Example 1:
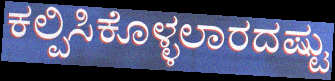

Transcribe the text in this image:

ಕಲ್ಪಿಸಿಕೊಳ್ಳಲಾರದಷ್ಟು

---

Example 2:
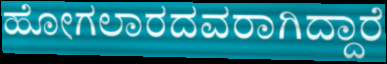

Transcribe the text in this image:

ಹೋಗಲಾರದವರಾಗಿದ್ದಾರೆ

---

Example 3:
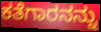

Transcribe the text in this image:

ಕತೆಗಾರನನ್ನು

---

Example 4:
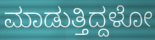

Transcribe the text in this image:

ಮಾಡುತ್ತಿದ್ದಳೋ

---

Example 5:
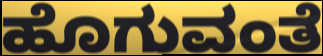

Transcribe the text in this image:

ಹೊಗುವಂತೆ